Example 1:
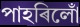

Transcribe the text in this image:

পাহৰিলোঁ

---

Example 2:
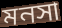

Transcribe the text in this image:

মনসা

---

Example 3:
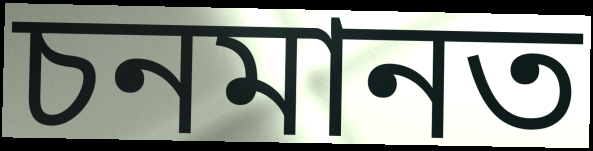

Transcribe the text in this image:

চনমানত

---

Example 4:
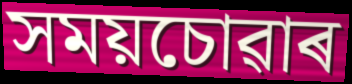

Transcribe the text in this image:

সময়চোৱাৰ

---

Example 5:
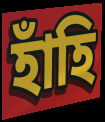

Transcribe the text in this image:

হাঁহি